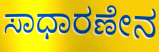
ಸಾಧಾರಣೇನ